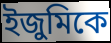
ইজুমিকে